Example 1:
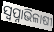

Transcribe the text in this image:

ସ୍ଵପ୍ନାଭିଳାଷୀ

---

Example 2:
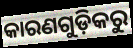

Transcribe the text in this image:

କାରଣଗୁଡ଼ିକରୁ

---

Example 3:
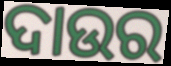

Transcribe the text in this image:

ଦାଉର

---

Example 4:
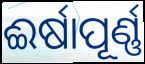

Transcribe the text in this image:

ଈର୍ଷାପୂର୍ଣ୍ଣ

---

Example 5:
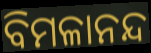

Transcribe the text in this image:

ବିମଳାନନ୍ଦ